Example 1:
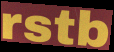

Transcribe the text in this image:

rstb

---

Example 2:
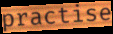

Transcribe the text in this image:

practise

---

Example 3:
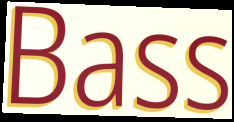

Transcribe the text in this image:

Bass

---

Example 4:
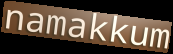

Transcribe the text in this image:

namakkum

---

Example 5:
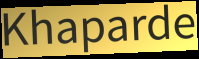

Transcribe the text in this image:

Khaparde